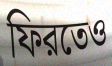
ফিরতেও